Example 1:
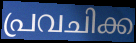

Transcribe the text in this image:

പ്രവചിക്ക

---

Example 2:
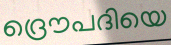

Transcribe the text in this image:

ദ്രൌപദിയെ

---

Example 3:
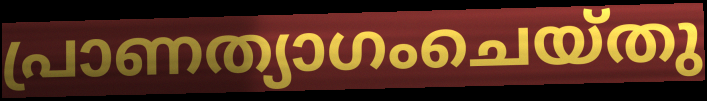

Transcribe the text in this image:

പ്രാണത്യാഗംചെയ്തു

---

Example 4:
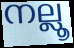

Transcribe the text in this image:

നല്ലൂ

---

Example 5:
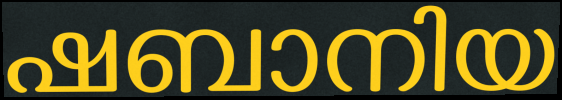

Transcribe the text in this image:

ഷബാനിയ